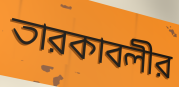
তারকাবলীর